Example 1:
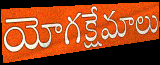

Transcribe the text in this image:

యోగక్షేమాలు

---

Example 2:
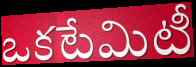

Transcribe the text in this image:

ఒకటేమిటీ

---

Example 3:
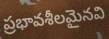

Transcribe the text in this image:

ప్రభావశీలమైనవి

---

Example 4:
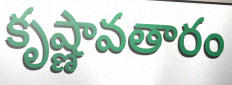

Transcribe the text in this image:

కృష్ణావతారం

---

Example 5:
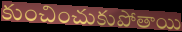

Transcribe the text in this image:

కుంచించుకుపోతాయి